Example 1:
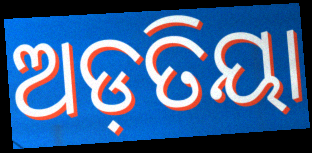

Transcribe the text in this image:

ଅଡ଼ତିୟା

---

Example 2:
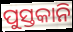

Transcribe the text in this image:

ପୁସ୍ତକାନି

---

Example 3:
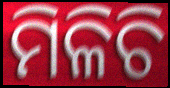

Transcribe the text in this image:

ମିଳିଚି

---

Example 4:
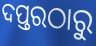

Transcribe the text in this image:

ଦପ୍ତରଠାରୁ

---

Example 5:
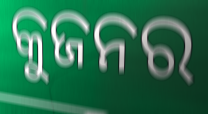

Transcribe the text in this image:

କୁଜନର